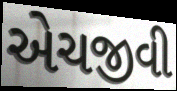
એચજીવી